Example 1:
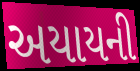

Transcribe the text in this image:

અયાયની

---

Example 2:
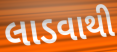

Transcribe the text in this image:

લાડવાથી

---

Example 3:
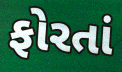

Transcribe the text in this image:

ફોરતાં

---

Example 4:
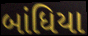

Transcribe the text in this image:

બાંધિયા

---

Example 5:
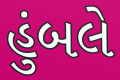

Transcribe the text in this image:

હુંબલે